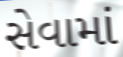
સેવામાં